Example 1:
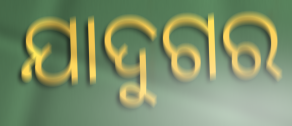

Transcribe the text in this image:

ଯାଦୁଗର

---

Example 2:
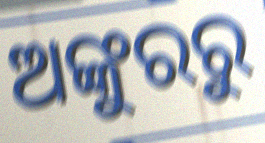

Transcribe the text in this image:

ଅଙ୍କୁରରୁ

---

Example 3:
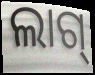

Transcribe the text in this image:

ଲାଗ୍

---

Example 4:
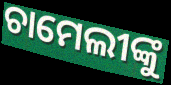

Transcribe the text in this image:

ଚାମେଲୀଙ୍କୁ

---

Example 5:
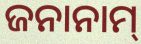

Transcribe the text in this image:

ଜନାନାମ୍